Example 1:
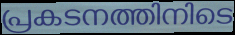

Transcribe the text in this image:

പ്രകടനത്തിനിടെ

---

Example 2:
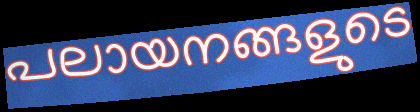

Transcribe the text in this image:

പലായനങ്ങളുടെ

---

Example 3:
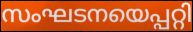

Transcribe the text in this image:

സംഘടനയെപ്പറ്റി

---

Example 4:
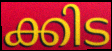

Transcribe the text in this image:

ക്കിട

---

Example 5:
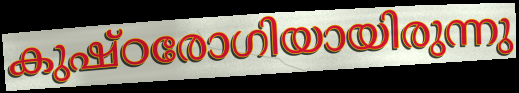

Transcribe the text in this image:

കുഷ്ഠരോഗിയായിരുന്നു